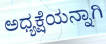
ಅಧ್ಯಕ್ಷೆಯನ್ನಾಗಿ